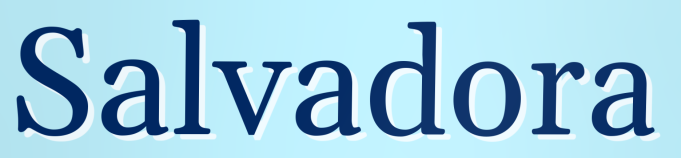
Salvadora